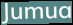
Jumua